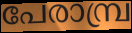
പേരാമ്പ്ര